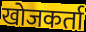
खोजकर्ता